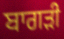
ਬਾਗੜੀ